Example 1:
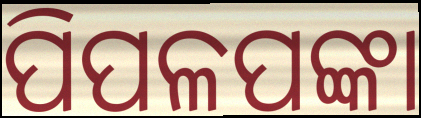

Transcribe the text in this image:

ପିପଳପଙ୍କା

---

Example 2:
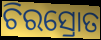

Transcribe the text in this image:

ଚିରସ୍ରୋତ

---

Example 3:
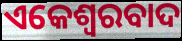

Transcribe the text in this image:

ଏକେଶ୍ୱରବାଦ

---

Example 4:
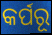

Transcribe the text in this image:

କର୍ପରୂ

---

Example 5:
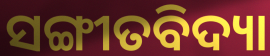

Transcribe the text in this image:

ସଙ୍ଗୀତବିଦ୍ୟା